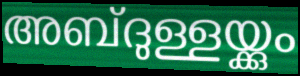
അബ്ദുള്ളയ്ക്കും